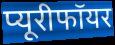
प्यूरीफॉयर